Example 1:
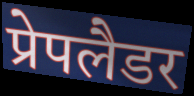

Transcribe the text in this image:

प्रेपलैडर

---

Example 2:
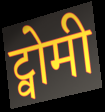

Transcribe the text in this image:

ट्वोमी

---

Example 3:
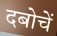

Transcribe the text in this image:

दबोचें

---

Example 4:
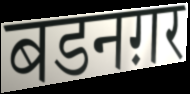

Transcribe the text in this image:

बडनग़र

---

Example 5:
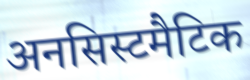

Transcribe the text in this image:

अनसिस्टमैटिक